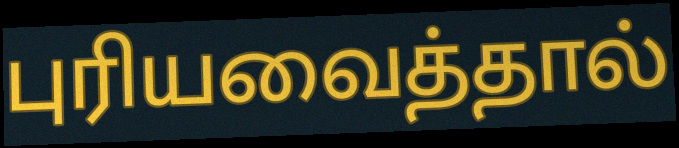
புரியவைத்தால்